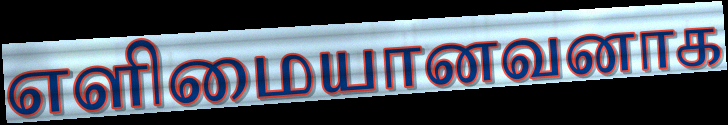
எளிமையானவனாக